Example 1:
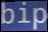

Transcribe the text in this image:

bip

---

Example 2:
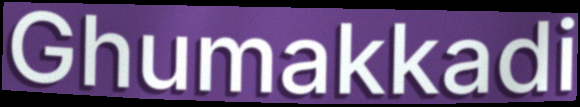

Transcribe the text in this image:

Ghumakkadi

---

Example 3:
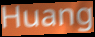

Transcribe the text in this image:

Huang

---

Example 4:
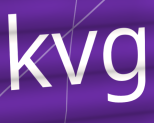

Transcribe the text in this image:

kvg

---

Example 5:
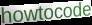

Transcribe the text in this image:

howtocode